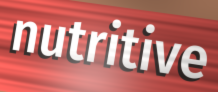
nutritive